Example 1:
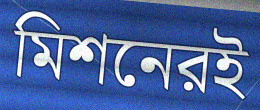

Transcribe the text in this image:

মিশনেরই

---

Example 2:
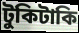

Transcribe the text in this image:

টুকিটাকি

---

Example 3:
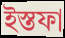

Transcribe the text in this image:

ইস্তফা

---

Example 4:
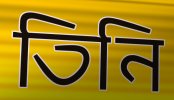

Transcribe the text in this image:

তিনি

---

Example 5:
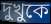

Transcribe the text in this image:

দুখুকে